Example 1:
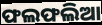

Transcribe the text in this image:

ଫଲଫଲିଆ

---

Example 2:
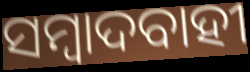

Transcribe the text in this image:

ସମ୍ବାଦବାହୀ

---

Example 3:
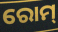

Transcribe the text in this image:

ରୋମ୍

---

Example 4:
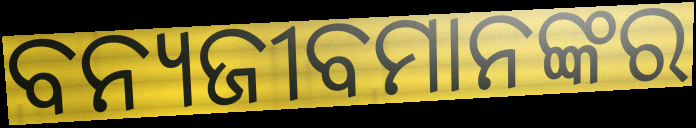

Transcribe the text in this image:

ବନ୍ୟଜୀବମାନଙ୍କର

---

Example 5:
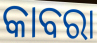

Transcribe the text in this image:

କାବରା